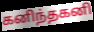
கனிந்தகனி